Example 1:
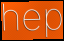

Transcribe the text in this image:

hep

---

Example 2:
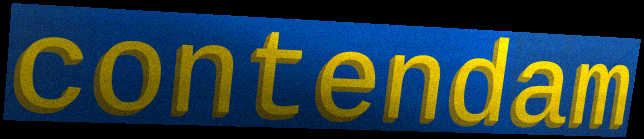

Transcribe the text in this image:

contendam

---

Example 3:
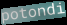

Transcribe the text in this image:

potondi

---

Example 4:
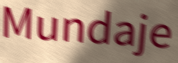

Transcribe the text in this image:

Mundaje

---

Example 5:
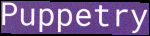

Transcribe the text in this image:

Puppetry